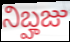
నిబ్హజు